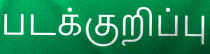
படக்குறிப்பு